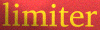
limiter